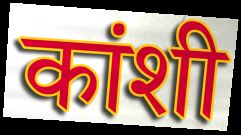
कांशी